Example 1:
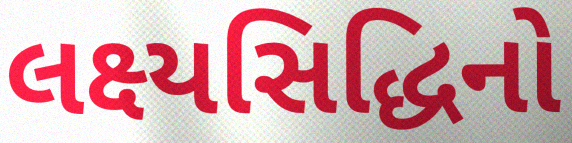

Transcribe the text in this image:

લક્ષ્યસિદ્ધિનો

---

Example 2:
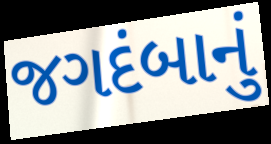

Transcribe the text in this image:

જગદંબાનું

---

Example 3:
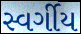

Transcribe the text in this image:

સ્વર્ગીય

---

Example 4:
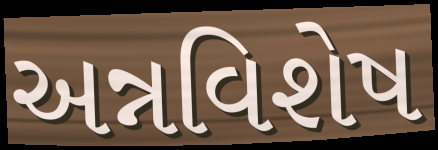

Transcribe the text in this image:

અન્નવિશેષ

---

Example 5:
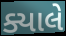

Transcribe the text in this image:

ક્યાલે